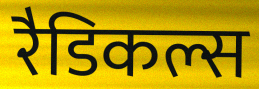
रैडिकल्स